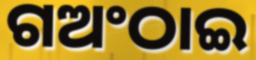
ଗଅଂଠାଇ